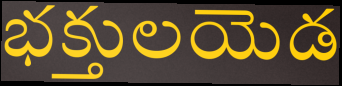
భక్తులయెడ